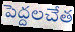
పెద్దలచేత